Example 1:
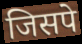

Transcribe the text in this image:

जिसपे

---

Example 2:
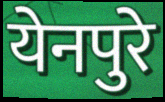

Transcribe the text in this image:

येनपुरे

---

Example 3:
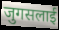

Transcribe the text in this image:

जुगसलाई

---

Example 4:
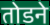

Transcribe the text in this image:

तोडने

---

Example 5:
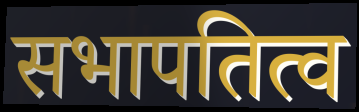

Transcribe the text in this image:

सभापतित्व